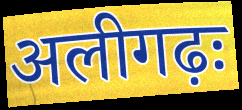
अलीगढ़ः